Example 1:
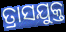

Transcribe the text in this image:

ତ୍ରାସଯୁକ୍ତ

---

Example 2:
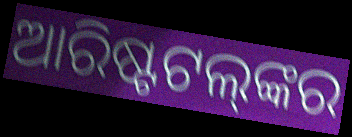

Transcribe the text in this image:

ଆରିଷ୍ଟଟଲ୍‌ଙ୍କର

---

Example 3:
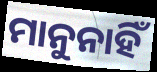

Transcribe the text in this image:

ମାନୁନାହିଁ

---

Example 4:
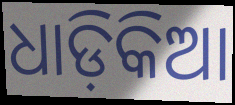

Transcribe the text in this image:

ଧାଡ଼ିକିଆ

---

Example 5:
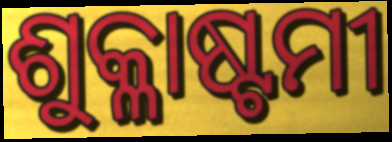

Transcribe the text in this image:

ଶୁକ୍ଳାଷ୍ଟମୀ